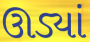
ઊડ્યાં